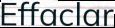
Effaclar